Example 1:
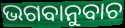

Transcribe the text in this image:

ଭଗବାନୁବାଚ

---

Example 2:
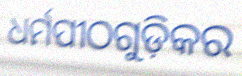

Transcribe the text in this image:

ଧର୍ମପୀଠଗୁଡ଼ିକର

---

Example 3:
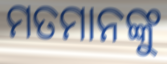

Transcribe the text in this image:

ମତମାନଙ୍କୁ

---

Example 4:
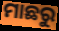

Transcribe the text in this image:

ମାଛରୁ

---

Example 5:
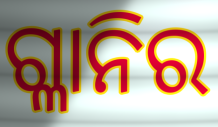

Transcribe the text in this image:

ଗ୍ଳାନିର